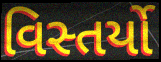
વિસ્તર્યો